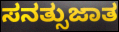
ಸನತ್ಸುಜಾತ